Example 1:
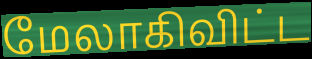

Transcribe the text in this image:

மேலாகிவிட்ட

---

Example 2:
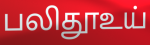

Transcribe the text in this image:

பலிதூஉய்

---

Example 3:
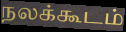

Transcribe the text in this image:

நலக்கூடம்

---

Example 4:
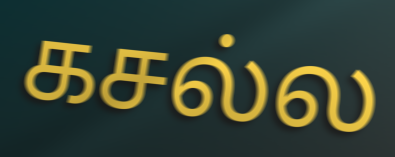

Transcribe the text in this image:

கசல்ல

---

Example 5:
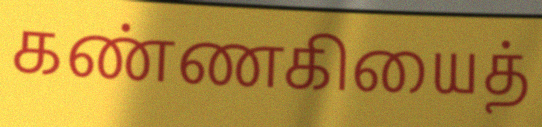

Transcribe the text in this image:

கண்ணகியைத்